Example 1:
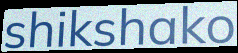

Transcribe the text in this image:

shikshako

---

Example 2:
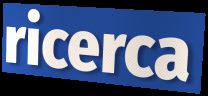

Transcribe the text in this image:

ricerca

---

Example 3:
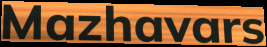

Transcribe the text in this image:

Mazhavars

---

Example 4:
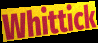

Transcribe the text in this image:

Whittick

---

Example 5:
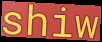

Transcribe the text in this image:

shiw